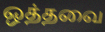
ஒத்தவை